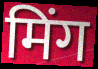
मिंग